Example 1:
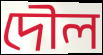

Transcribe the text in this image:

দৌল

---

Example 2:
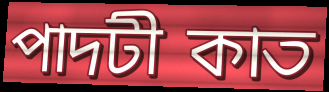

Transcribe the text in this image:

পাদটীকাত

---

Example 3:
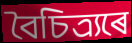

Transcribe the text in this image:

বৈচিত্ৰ্যৰে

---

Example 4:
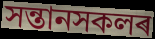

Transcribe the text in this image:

সন্তানসকলৰ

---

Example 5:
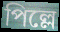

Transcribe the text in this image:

পিল্লে